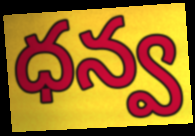
ధన్వ